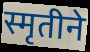
स्मृतीने